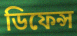
ডিফেন্স